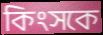
কিংসকে